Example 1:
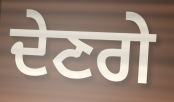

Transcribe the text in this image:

ਦੇਣਗੇ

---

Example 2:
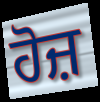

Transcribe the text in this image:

ਹੋਜ਼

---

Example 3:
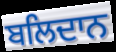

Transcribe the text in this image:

ਬਲਿਦਾਨ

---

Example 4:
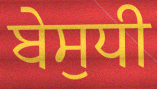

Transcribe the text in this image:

ਬੇਸੁਧੀ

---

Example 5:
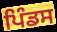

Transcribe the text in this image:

ਪਿੰਡਸ